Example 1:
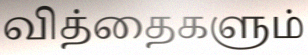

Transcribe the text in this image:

வித்தைகளும்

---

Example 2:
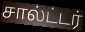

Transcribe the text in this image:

சால்ட்டர்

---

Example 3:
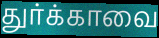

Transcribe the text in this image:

துர்க்காவை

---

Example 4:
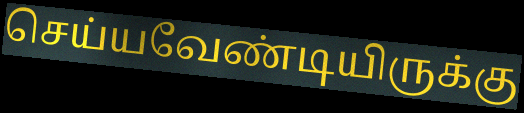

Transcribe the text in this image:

செய்யவேண்டியிருக்கு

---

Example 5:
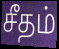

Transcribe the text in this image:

சீதம்